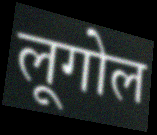
लूगोल